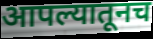
आपल्यातूनच